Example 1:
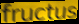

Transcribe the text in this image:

fructus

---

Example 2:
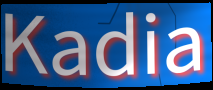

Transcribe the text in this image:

Kadia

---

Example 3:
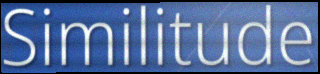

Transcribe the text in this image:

Similitude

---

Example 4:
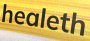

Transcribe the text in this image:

healeth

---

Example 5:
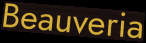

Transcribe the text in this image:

Beauveria